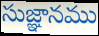
సుజ్ఞానము